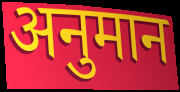
अनुमान